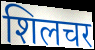
शिलचर